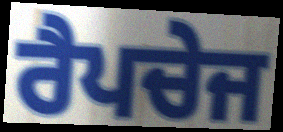
ਰੈਪਚੇਜ